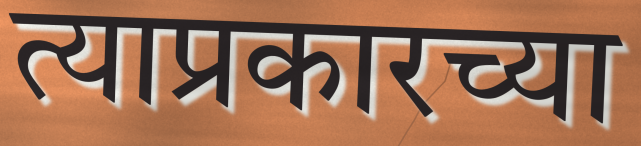
त्याप्रकारच्या